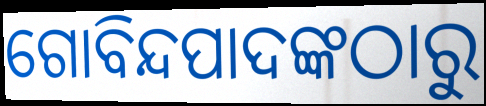
ଗୋବିନ୍ଦପାଦଙ୍କଠାରୁ